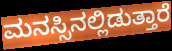
ಮನಸ್ಸಿನಲ್ಲಿಡುತ್ತಾರೆ